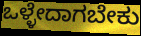
ಒಳ್ಳೇದಾಗಬೇಕು